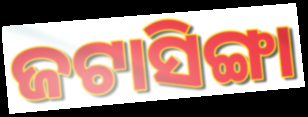
ଜଟାସିଙ୍ଗା